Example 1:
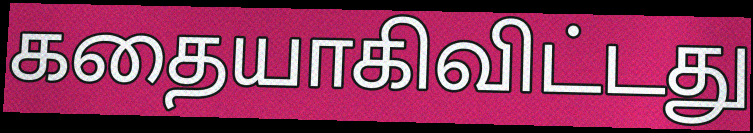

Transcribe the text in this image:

கதையாகிவிட்டது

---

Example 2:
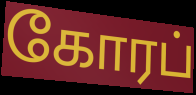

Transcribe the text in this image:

கோரப்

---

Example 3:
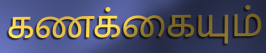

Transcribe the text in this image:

கணக்கையும்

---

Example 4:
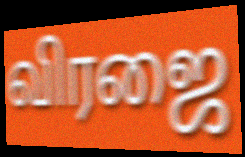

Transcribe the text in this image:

விரஜை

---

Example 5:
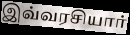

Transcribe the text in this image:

இவ்வரசியார்